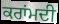
ਕਰਾਂਮਦੀ